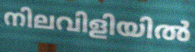
നിലവിളിയിൽ